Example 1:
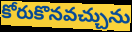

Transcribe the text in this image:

కోరుకొనవచ్చును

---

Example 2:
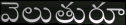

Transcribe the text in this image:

వెలుతురూ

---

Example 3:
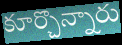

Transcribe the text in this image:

కూర్చొన్నారు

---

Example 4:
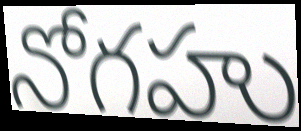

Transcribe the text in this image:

నోగహు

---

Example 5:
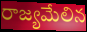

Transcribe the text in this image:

రాజ్యమేలిన